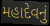
મહાદેવનું